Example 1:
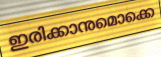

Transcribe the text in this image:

ഇരിക്കാനുമൊക്കെ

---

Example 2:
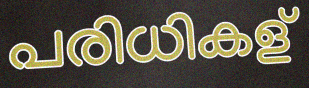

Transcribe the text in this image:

പരിധികള്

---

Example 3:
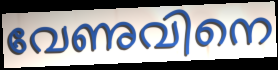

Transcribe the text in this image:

വേണുവിനെ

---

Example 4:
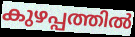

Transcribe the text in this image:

കുഴപ്പത്തിൽ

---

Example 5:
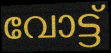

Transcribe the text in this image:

വോട്ട്